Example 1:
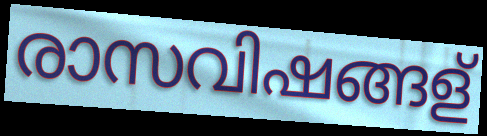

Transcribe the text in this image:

രാസവിഷങ്ങള്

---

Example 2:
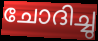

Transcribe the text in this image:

ചോദിച്ചു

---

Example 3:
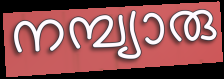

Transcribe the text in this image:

നമ്പ്യാരു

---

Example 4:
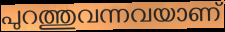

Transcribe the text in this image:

പുറത്തുവന്നവയാണ്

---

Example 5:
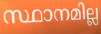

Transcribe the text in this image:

സ്ഥാനമില്ല